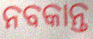
ନବକାନ୍ତ